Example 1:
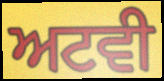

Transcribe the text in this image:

ਅਟਵੀ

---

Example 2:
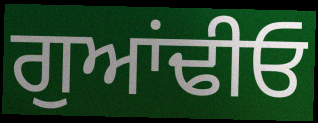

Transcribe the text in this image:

ਗੁਆਂਢੀਓ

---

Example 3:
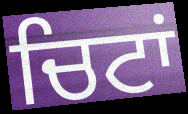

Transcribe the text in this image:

ਚਿਟਾਂ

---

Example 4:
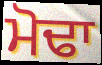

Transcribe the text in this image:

ਮੋਢਾ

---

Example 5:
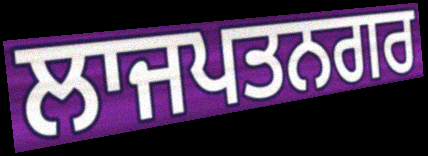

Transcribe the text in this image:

ਲਾਜਪਤਨਗਰ